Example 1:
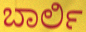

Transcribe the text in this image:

ಬಾರ್ಲಿ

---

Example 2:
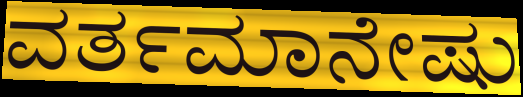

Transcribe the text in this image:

ವರ್ತಮಾನೇಷು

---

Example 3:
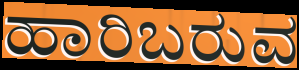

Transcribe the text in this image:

ಹಾರಿಬರುವ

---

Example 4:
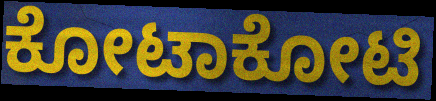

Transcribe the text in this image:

ಕೋಟಾಕೋಟಿ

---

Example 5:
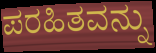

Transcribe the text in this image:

ಪರಹಿತವನ್ನು